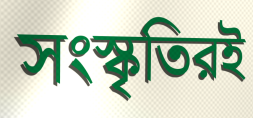
সংস্কৃতিরই